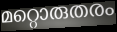
മറ്റൊരുതരം